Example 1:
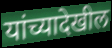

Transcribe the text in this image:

यांच्यादेखील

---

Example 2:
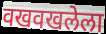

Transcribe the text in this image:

वखवखलेला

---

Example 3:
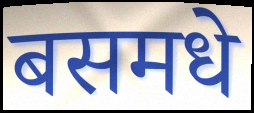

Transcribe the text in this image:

बसमधे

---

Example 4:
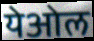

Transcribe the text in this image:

येओल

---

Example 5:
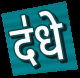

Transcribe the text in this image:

द॑धे